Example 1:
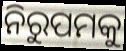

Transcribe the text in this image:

ନିରୁପମକୁ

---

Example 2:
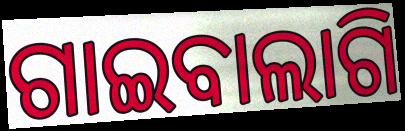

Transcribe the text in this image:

ଗାଇବାଲାଗି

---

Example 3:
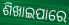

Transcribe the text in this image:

ଶିଖାଇପାରେ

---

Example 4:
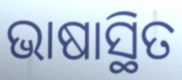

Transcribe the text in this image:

ଭାଷାସ୍ଥିତ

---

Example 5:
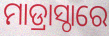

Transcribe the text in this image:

ମାଡ୍ରାସ୍ଠାରେ